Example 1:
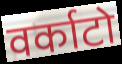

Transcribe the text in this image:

वर्काटो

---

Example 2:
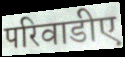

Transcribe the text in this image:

परिवाडीए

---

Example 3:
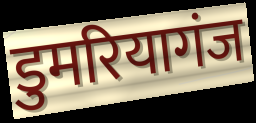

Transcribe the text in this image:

डुमरियागंज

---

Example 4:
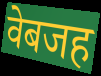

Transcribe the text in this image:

वेबजह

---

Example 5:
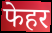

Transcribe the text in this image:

फेहर